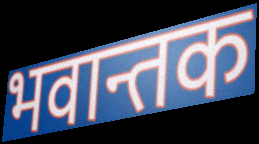
भवान्तक